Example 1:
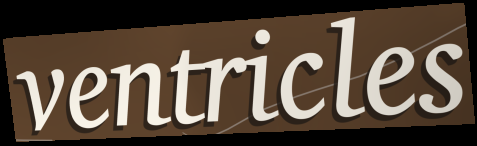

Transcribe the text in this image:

ventricles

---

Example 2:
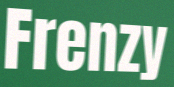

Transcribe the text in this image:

Frenzy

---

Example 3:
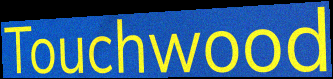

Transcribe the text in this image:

Touchwood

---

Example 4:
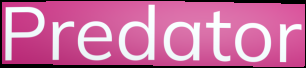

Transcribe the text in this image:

Predator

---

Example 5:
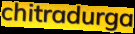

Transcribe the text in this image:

chitradurga